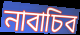
নাবাচিব